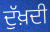
ਦੁੱਖ਼ਦੀ